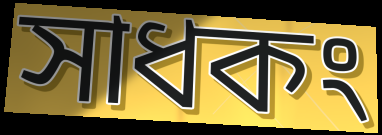
সাধকং